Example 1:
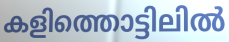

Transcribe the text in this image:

കളിത്തൊട്ടിലിൽ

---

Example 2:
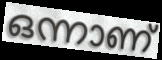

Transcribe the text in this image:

ഒന്നാണ്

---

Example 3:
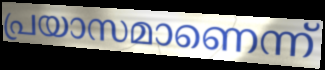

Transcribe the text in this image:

പ്രയാസമാണെന്ന്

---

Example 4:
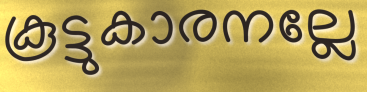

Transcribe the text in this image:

കൂട്ടുകാരനല്ലേ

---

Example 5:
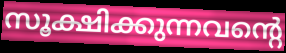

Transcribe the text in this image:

സൂക്ഷിക്കുന്നവന്റെ